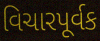
વિચારપૂર્વક